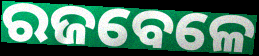
ରଜବେଳେ